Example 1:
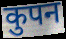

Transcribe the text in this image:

कुपन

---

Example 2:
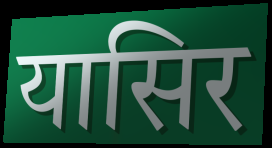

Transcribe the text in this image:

यासिर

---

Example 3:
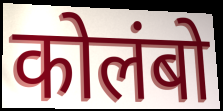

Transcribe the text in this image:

कोलंबो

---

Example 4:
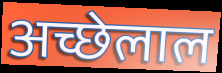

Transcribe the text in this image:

अच्छेलाल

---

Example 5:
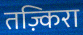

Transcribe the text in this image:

तज़्किरा